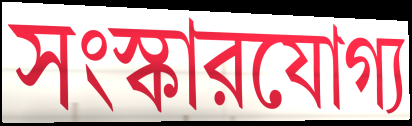
সংস্কারযোগ্য